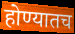
होण्यातच